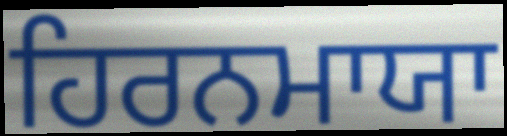
ਹਿਰਨਮਾਯਾ